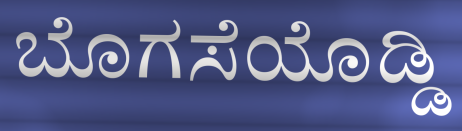
ಬೊಗಸೆಯೊಡ್ಡಿ